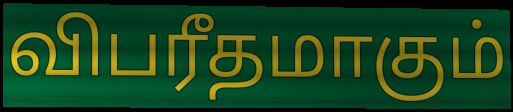
விபரீதமாகும்